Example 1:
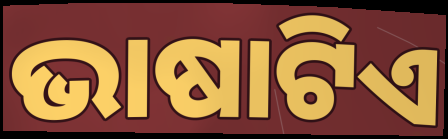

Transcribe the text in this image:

ଭାଷାଟିଏ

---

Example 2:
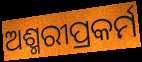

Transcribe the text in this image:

ଅଶ୍ମରୀପ୍ରକର୍ମ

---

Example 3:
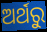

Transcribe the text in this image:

ଅର୍ଥରୁ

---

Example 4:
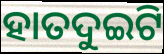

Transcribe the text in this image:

ହାତଦୁଇଟି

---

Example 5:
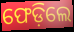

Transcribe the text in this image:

ଫେଡ଼ିଲେ